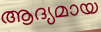
ആദ്യമായ